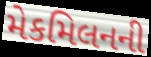
મેકમિલનની